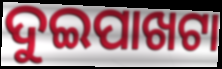
ଦୁଇପାଖଟା